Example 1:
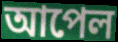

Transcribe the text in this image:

আপেল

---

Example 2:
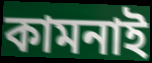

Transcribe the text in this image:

কামনাই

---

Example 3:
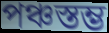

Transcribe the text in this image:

পঞ্চস্তম্ভ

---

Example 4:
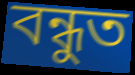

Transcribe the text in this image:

বন্ধুত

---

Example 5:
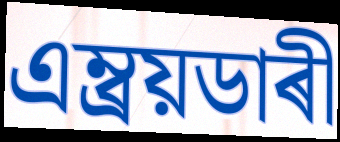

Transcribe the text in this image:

এম্ব্ৰয়ডাৰী